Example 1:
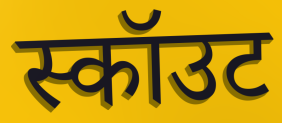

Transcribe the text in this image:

स्कॉउट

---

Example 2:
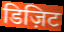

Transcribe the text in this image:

डिज़िट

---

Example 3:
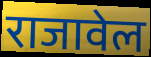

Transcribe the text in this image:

राजावेल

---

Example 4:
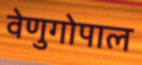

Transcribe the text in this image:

वेणुगोपाल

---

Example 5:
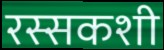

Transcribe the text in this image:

रस्सकशी